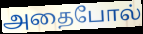
அதைபோல்